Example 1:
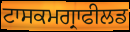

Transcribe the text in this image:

ਟਾਸਕਮਗ੍ਰਾਫੀਲਡ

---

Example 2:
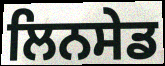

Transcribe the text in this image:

ਲਿਨਸੇਡ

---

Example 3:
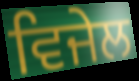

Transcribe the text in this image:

ਵਿਜੇਲ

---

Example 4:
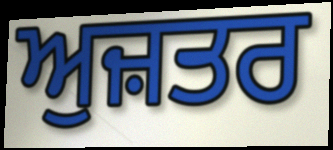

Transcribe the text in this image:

ਅੁਜ਼ਤਰ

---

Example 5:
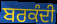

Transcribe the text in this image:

ਬਰਕੰਦੀ